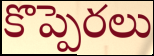
కొప్పెరలు